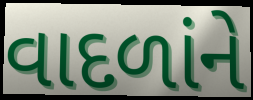
વાદળાંને